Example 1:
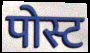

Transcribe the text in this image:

पोस्ट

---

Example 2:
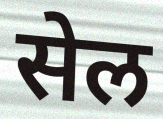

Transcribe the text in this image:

सेल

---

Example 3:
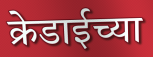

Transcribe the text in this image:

क्रेडाईच्या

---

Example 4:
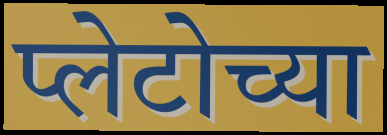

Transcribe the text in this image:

प्लेटोच्या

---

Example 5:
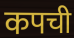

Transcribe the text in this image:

कपची